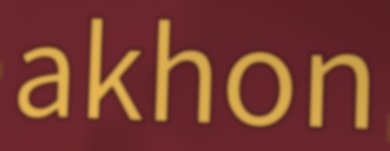
akhon